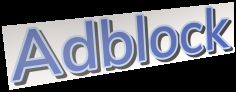
Adblock